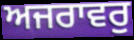
ਅਜਰਾਵਰੁ